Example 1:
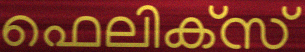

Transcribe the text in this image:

ഫെലിക്‌സ്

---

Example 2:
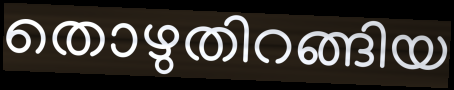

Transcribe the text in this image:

തൊഴുതിറങ്ങിയ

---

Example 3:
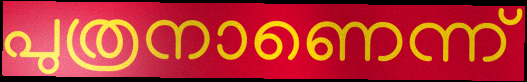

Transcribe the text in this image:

പുത്രനാണെന്ന്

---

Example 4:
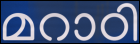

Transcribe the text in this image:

മറാഠി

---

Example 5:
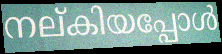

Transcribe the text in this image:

നല്കിയപ്പോൾ